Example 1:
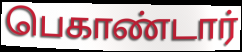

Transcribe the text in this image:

பெகாண்டார்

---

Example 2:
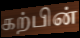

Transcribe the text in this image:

கற்பின்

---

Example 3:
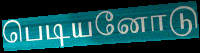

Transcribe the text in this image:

பெடியனோடு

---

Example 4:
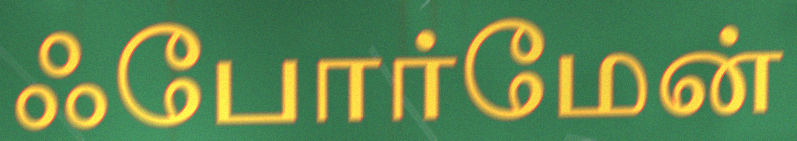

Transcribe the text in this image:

ஃபோர்மேன்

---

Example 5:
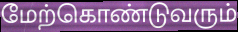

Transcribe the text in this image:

மேற்கொண்டுவரும்